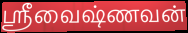
ஸ்ரீவைஷ்ணவன்